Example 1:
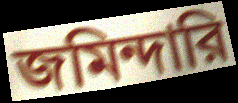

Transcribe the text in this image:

জমিন্দারি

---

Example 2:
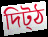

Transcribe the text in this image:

দিট্ঠ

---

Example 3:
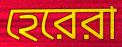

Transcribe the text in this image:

হেরেরা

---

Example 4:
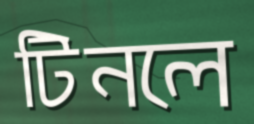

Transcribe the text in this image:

টিনলে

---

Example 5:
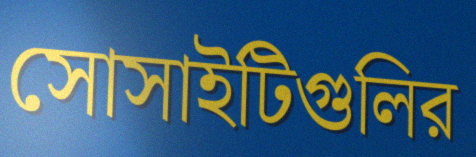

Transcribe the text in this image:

সোসাইটিগুলির